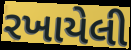
રખાયેલી